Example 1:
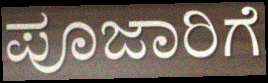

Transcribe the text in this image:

ಪೂಜಾರಿಗೆ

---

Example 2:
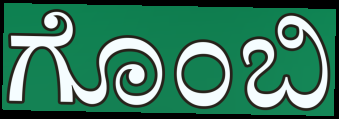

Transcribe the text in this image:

ಗೊಂಬಿ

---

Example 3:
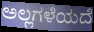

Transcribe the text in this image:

ಅಲ್ಲಗಳೆಯದೆ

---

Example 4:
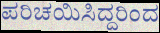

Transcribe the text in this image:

ಪರಿಚಯಿಸಿದ್ದರಿಂದ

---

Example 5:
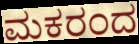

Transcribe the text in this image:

ಮಕರಂದ